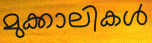
മുക്കാലികൾ